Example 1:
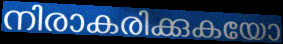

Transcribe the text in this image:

നിരാകരിക്കുകയോ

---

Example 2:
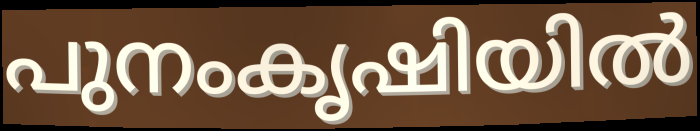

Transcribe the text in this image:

പുനംകൃഷിയിൽ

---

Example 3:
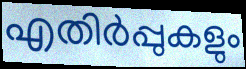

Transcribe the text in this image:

എതിർപ്പുകളും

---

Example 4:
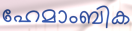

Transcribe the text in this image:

ഹേമാംബിക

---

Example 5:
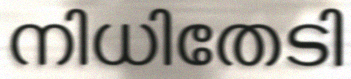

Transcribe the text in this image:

നിധിതേടി